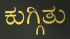
ಕುಗ್ಗಿತು